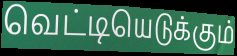
வெட்டியெடுக்கும்